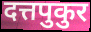
दत्तपुकुर